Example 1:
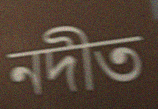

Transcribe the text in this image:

নদীত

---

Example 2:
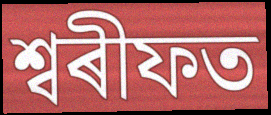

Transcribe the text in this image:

শ্বৰীফত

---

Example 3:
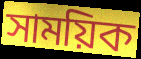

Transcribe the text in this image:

সাময়িক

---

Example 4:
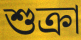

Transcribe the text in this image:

শুক্ৰা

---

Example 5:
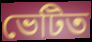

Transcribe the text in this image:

ভেটিত